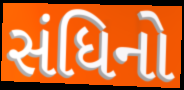
સંધિનો